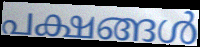
പക്ഷങ്ങൾ